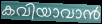
കവിയാവാൻ